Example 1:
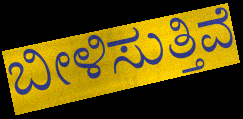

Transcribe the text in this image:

ಬೀಳಿಸುತ್ತಿವೆ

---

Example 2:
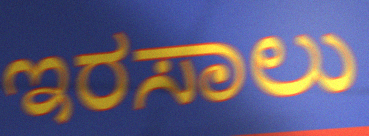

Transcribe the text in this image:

ಇರಸಾಲು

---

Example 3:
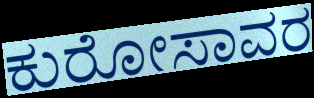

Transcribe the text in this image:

ಕುರೋಸಾವರ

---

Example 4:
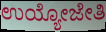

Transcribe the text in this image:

ಉಯ್ಯೋಜೇತಿ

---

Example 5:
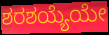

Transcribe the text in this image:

ಶರಶಯ್ಯೆಯೇ